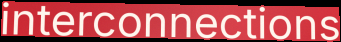
interconnections